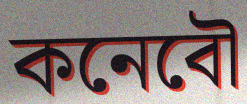
কনেবৌ